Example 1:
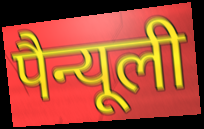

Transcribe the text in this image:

पैन्यूली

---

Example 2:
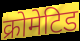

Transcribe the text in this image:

क्रोमेटिड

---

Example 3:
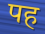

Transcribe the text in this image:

पह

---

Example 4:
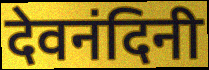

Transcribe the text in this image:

देवनंदिनी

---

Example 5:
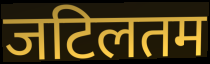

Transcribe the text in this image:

जटिलतम